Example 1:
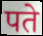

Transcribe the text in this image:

पते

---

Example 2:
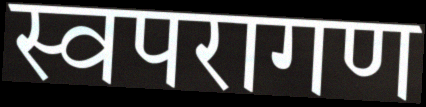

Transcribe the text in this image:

स्वपरागण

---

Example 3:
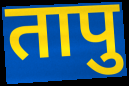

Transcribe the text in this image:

तापु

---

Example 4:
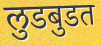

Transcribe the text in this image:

लुडबुडत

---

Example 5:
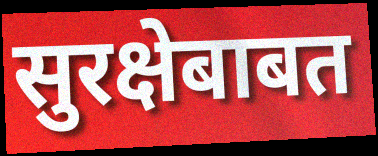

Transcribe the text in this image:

सुरक्षेबाबत